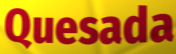
Quesada